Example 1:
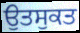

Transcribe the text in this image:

ਉਤਸੁਕਤ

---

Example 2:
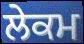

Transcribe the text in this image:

ਲੇਕਮ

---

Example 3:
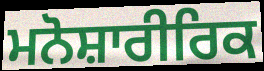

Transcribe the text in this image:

ਮਨੋਸ਼ਾਰੀਰਿਕ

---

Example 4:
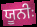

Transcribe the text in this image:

ਯੂਨੀਃ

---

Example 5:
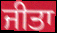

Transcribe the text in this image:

ਜੀਤਾ